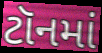
ટૉનમાં